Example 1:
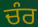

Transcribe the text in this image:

ਚੰਰ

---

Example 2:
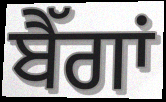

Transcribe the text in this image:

ਬੈੱਗਾਂ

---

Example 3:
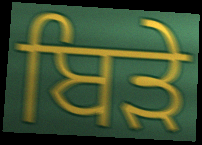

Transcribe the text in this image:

ਬਿੜੇ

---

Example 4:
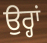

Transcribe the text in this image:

ਉਰ੍ਹਾਂ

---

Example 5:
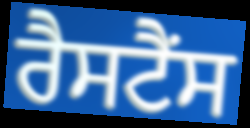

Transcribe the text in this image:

ਰੈਸਟੈਂਸ